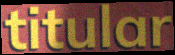
titular